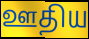
ஊதிய